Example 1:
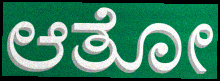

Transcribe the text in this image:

ಆತೋ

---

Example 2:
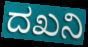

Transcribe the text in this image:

ದಖನಿ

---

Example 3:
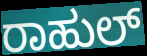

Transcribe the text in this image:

ರಾಹುಲ್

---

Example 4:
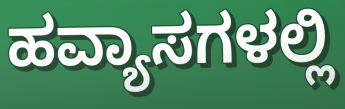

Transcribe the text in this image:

ಹವ್ಯಾಸಗಳಲ್ಲಿ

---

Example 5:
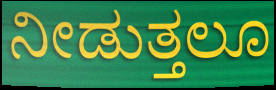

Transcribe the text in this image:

ನೀಡುತ್ತಲೂ